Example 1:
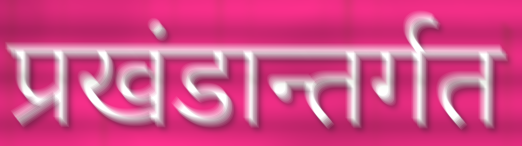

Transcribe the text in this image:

प्रखंडान्तर्गत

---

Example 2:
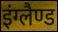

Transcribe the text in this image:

इंग्लैण्ड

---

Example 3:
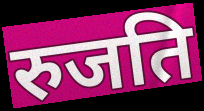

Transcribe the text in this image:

रुजति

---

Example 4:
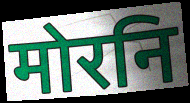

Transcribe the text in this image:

मोरनि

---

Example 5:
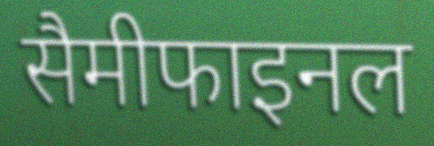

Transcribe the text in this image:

सैमीफाइनल